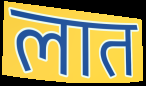
लात